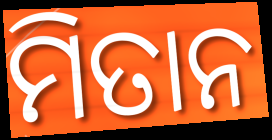
ମିତାନ